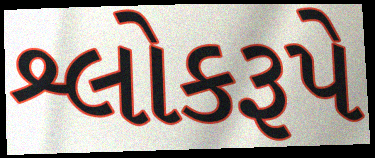
શ્લોકરૂપે